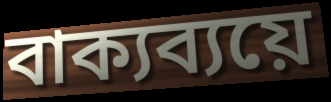
বাক্যব্যয়ে